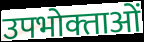
उपभोक्‍ताओं